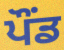
ਪੌਂਡ